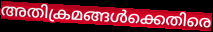
അതിക്രമങ്ങൾക്കെതിരെ